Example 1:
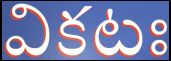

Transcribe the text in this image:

వికటః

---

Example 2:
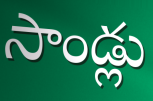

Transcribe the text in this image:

సాండ్లు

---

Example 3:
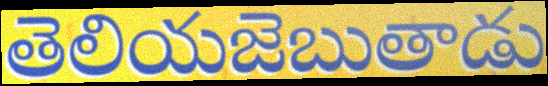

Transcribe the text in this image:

తెలియజెబుతాడు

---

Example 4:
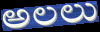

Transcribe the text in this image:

అలలు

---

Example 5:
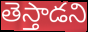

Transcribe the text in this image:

తెస్తాడని